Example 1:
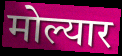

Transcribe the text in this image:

मोल्यार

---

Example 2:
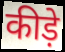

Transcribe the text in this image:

कीड़े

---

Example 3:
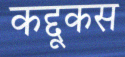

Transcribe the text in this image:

कद्दूकस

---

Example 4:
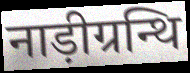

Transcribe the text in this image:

नाड़ीग्रन्थि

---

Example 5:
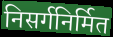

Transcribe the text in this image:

निसर्गनिर्मित